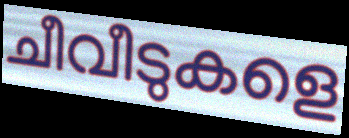
ചീവീടുകളെ